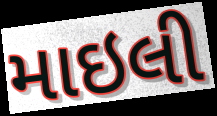
માઇલી